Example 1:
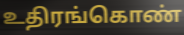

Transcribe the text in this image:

உதிரங்கொண்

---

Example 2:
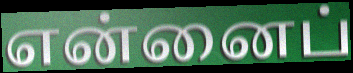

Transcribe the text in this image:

என்னைப்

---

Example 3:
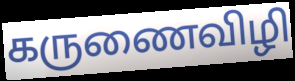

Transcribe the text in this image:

கருணைவிழி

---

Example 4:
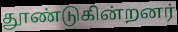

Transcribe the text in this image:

தூண்டுகின்றனர்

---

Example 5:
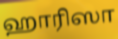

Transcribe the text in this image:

ஹாரிஸா